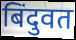
बिंदुवत